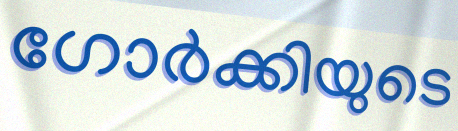
ഗോർക്കിയുടെ